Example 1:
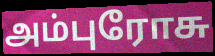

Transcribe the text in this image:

அம்புரோசு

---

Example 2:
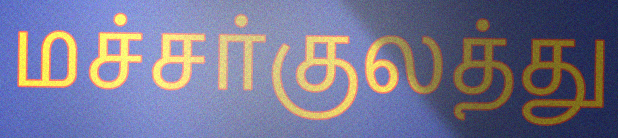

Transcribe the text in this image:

மச்சர்குலத்து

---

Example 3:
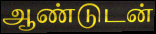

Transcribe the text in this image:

ஆண்டுடன்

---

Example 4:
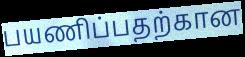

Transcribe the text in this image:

பயணிப்பதற்கான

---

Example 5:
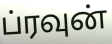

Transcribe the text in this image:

ப்ரவுன்